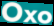
Oxo